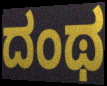
ದಂಥ